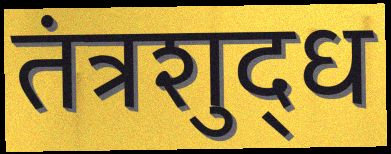
तंत्रशुद्ध